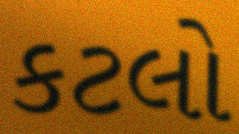
કટલો